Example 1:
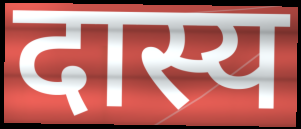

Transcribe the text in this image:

दास्य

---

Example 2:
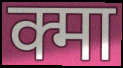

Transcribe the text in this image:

क्मा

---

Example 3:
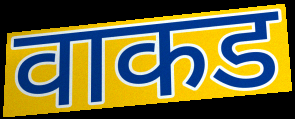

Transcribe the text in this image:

वाकड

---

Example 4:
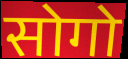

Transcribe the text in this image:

सोगो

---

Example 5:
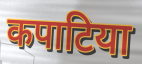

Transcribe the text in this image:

कपाटिया